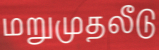
மறுமுதலீடு